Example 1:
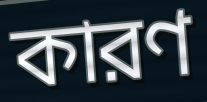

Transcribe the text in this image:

কারণ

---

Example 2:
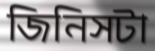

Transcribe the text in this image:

জিনিসটা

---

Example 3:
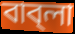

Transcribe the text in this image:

বাব্‌লা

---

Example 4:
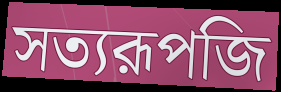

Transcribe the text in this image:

সত্যরূপজি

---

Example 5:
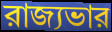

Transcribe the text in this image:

রাজ্যভার